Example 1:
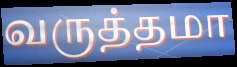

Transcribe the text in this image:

வருத்தமா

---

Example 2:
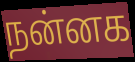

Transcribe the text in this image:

நன்னக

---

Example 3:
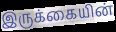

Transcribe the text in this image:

இருக்கையின்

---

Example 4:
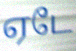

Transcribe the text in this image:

ஏடே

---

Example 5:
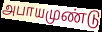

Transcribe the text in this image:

அபாயமுண்டு